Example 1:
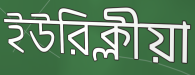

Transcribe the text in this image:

ইউরিক্লীয়া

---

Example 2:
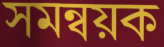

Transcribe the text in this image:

সমন্বয়ক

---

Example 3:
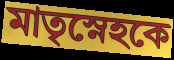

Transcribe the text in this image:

মাতৃস্নেহকে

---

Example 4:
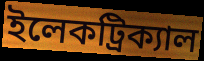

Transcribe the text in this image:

ইলেকট্রিক্যাল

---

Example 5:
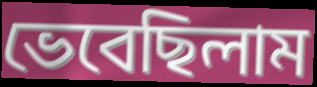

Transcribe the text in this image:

ভেবেছিলাম